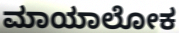
ಮಾಯಾಲೋಕ